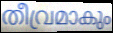
തീവ്രമാകും